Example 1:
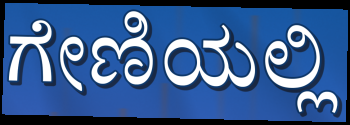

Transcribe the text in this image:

ಗೇಣಿಯಲ್ಲಿ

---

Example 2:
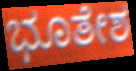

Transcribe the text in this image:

ಭೂತೇಶ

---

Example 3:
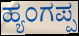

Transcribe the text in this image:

ಹ್ಯಂಗಪ್ಪ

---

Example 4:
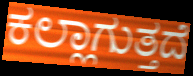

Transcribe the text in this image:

ಕಲ್ಲಾಗುತ್ತದೆ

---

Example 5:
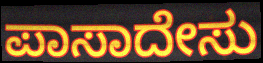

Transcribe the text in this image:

ಪಾಸಾದೇಸು